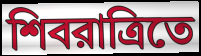
শিবরাত্রিতে